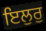
ਇਲੁਰੁ